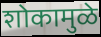
शोकामुळे